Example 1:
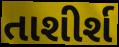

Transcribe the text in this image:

તાશીર્શ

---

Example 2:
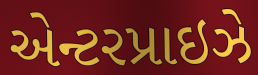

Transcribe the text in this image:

એન્ટરપ્રાઇઝે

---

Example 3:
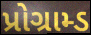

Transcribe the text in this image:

પ્રોગ્રામ્ડ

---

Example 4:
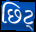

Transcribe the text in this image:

છિટ્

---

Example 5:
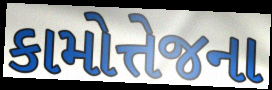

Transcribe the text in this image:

કામોત્તેજના